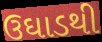
ઉઘાડથી